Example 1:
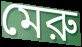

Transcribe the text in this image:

মেরু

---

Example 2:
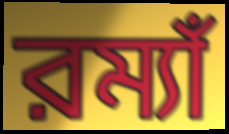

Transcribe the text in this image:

রম্যাঁ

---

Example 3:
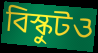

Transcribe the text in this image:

বিস্কুটও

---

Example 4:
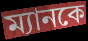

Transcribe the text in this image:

ম্যানকে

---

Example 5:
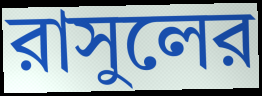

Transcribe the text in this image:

রাসুলের